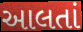
આલતાં